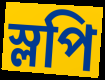
স্লপি